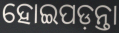
ହୋଇପଡ଼ନ୍ତା